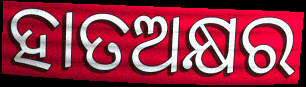
ହାତଅକ୍ଷର